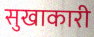
सुखाकारी